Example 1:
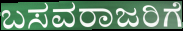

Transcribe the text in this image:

ಬಸವರಾಜರಿಗೆ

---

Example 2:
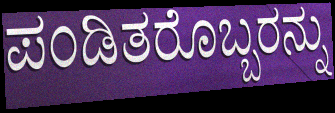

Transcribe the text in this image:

ಪಂಡಿತರೊಬ್ಬರನ್ನು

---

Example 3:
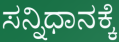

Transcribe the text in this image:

ಸನ್ನಿಧಾನಕ್ಕೆ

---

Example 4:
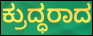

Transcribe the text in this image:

ಕ್ರುದ್ಧರಾದ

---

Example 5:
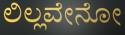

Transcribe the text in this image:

ಲಿಲ್ಲವೇನೋ